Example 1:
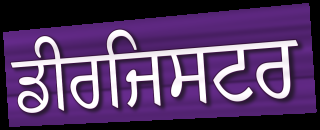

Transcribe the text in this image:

ਡੀਰਜਿਸਟਰ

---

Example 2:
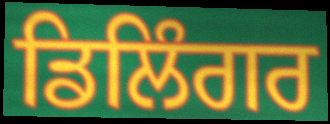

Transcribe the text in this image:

ਡਿਲਿੰਗਰ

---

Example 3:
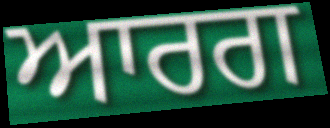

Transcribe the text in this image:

ਆਰਗ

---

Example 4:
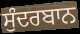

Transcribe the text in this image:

ਸੁੰਦਰਬਾਨ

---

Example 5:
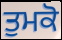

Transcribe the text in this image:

ਤੁਮਕੋ